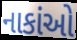
નાકાંઓ